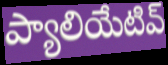
ప్యాలియేటివ్